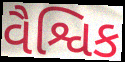
વૈશ્વિક